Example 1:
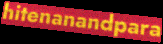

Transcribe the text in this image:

hitenanandpara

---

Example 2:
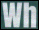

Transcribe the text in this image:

Wh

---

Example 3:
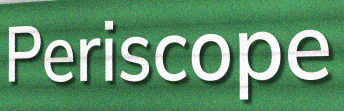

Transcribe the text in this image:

Periscope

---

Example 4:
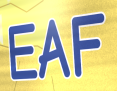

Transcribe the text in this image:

EAF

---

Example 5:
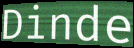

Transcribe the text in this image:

Dinde